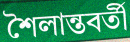
শৈলান্তবর্তী